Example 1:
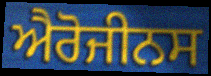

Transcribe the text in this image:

ਐਰੋਜੀਨਸ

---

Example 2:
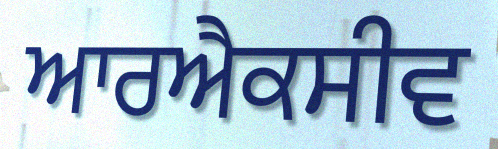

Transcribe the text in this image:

ਆਰਐਕਸੀਵ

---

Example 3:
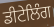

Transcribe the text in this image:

ਡੀਟੇਲਿੰਗ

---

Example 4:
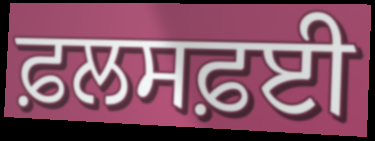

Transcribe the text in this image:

ਫ਼ਲਸਫ਼ਈ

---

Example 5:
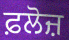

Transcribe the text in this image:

ਫ਼ਲੋਜ਼